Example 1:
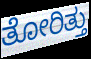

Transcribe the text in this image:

ತೋರಿತ್ತು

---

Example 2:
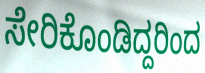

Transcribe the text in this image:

ಸೇರಿಕೊಂಡಿದ್ದರಿಂದ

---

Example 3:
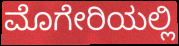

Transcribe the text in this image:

ಮೊಗೇರಿಯಲ್ಲಿ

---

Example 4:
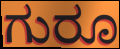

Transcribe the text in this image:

ಗುರೂ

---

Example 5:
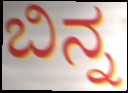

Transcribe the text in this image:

ಬಿನ್ನ